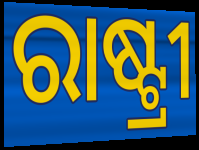
ରାଷ୍ଟ୍ରୀ